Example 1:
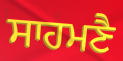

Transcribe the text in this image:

ਸਾਹਮਣੈ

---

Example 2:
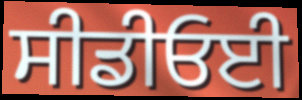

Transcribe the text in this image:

ਸੀਡੀਓਈ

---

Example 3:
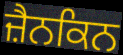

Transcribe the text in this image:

ਜ਼ੈਨਕਿਨ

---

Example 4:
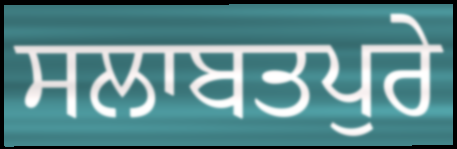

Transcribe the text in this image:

ਸਲਾਬਤਪੁਰੇ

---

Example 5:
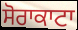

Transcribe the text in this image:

ਸੋਰਾਕਾਟਾ